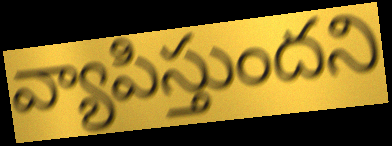
వ్యాపిస్తుందని